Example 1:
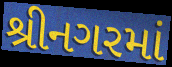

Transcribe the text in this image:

શ્રીનગરમાં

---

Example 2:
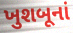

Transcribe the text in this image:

ખુશબૂનાં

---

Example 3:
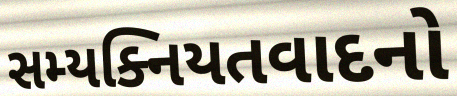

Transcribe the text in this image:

સમ્યક્નિયતવાદનો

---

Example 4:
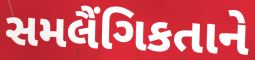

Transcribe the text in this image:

સમલૈંગિકતાને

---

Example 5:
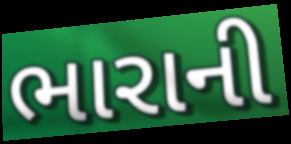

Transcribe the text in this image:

ભારાની